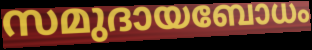
സമുദായബോധം